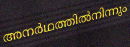
അനർഥത്തിൽനിന്നും